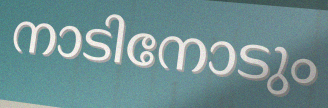
നാടിനോടും